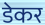
डेकर